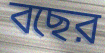
বছের